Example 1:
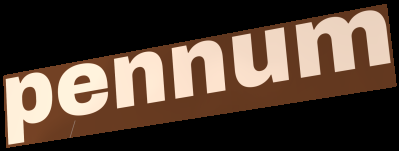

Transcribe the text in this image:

pennum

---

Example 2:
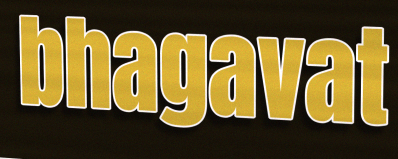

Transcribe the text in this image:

bhagavat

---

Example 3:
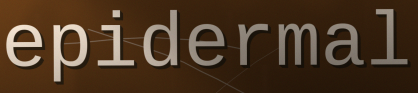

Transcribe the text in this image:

epidermal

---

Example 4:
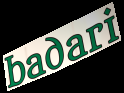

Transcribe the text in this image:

badari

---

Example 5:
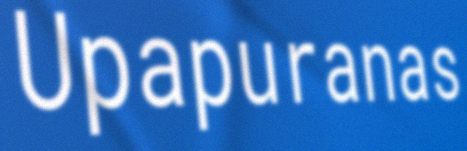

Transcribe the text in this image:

Upapuranas